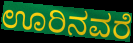
ಊರಿನವರೆ